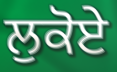
ਲੁਕੋਏ